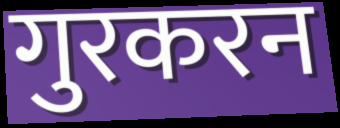
गुरकरन